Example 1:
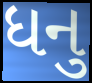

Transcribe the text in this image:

ધનુ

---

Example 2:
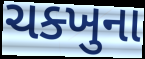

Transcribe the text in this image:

ચક્ખુના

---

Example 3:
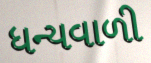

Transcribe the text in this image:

ધન્યવાળી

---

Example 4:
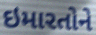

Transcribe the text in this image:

ઇમારતોને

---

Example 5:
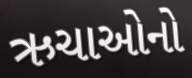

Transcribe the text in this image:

ઋચાઓનો